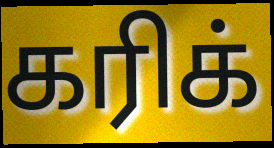
கரிக்